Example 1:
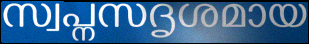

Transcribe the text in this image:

സ്വപ്നസദൃശമായ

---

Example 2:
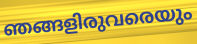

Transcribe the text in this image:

ഞങ്ങളിരുവരെയും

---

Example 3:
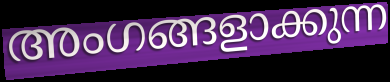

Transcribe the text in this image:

അംഗങ്ങളാക്കുന്ന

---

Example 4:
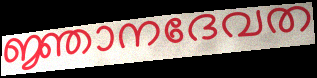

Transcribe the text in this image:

ജ്ഞാനദേവത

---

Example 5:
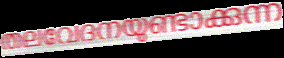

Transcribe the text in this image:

തലവേദനയുണ്ടാക്കുന്ന